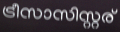
ട്രീസാസിസ്റ്റര്